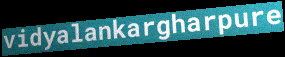
vidyalankargharpure